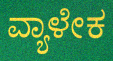
ವ್ಯಾಳೇಕ